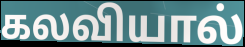
கலவியால்